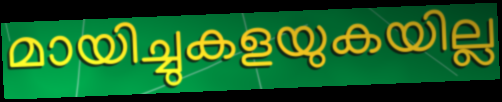
മായിച്ചുകളയുകയില്ല